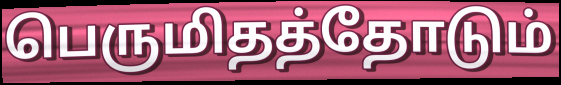
பெருமிதத்தோடும்